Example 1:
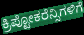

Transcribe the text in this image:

ಕ್ರಿಪ್ಟೋಕರೆನ್ಸಿಗಳಿಗೆ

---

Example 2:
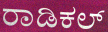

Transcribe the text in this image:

ರಾಡಿಕಲ್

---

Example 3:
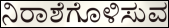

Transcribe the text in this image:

ನಿರಾಶೆಗೊಳಿಸುವ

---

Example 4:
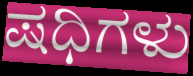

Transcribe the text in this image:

ಷಧಿಗಳು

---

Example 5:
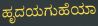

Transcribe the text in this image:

ಹೃದಯಗುಹೆಯಾ